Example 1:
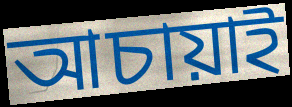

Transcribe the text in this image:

আচায়াই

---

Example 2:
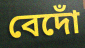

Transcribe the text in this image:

বেদোঁ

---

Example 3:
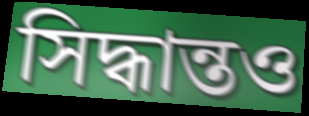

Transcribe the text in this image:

সিদ্ধান্তও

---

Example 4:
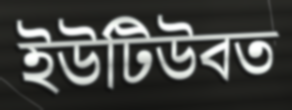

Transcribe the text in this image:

ইউটিউবত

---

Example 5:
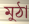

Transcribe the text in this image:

মুঠা